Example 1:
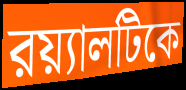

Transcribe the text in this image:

রয়্যালটিকে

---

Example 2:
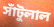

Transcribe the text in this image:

সাঁটুলাল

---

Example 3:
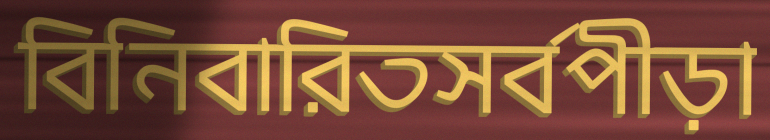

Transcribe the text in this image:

বিনিবারিতসর্বপীড়া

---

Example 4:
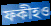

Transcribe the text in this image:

ফকীহও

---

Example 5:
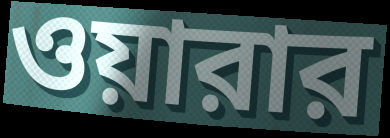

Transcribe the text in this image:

ওয়ারার